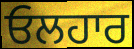
ਓਲਹਾਰ